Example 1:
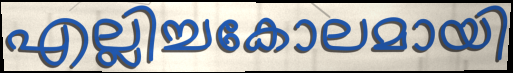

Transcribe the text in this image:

എല്ലിച്ചകോലമായി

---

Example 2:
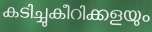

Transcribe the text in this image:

കടിച്ചുകീറിക്കളയും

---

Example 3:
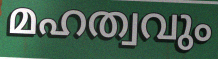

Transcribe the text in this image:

മഹത്വവും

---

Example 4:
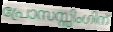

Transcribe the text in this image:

പ്രോസസ്സിംഗിന്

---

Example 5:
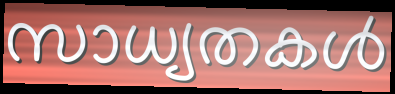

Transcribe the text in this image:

സാധ്യതകൾ